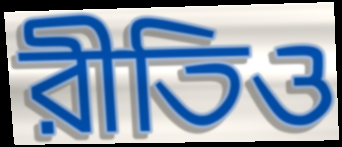
রীতিও